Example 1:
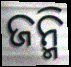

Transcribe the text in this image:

ଜନ୍ମି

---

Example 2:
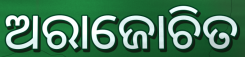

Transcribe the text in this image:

ଅରାଜୋଚିତ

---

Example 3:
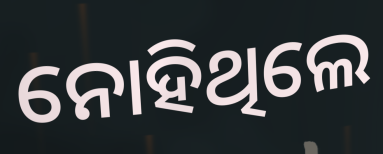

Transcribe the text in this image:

ନୋହିଥିଲେ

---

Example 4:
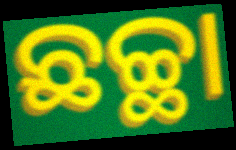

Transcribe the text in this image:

ଛଚ୍ଛା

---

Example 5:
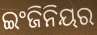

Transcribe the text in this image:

ଇଂଜିନିୟର